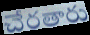
చేరతారు